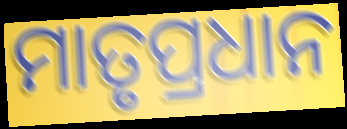
ମାତୃପ୍ରଧାନ